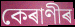
কেৰাণীৰ